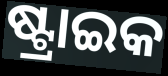
ଷ୍ଟ୍ରାଇକ